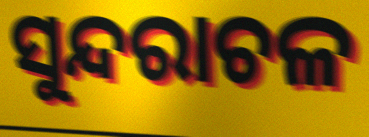
ସୁନ୍ଦରାଚଳ